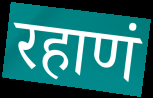
रहाणं